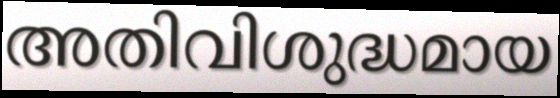
അതിവിശുദ്ധമായ